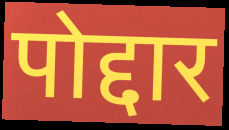
पोद्दार